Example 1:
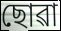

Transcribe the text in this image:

ছোৱা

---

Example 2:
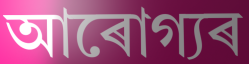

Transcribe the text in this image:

আৰোগ্যৰ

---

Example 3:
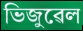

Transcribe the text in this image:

ভিজুৱেল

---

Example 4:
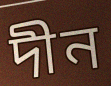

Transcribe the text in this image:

দীন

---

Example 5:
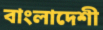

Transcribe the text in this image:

বাংলাদেশী